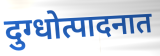
दुग्धोत्पादनात